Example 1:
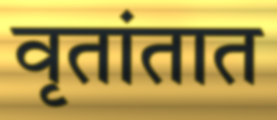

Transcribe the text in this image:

वृतांतात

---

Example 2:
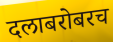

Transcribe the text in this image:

दलाबरोबरच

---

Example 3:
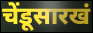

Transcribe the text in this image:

चेंडूसारखं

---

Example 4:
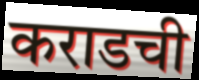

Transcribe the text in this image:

कराडची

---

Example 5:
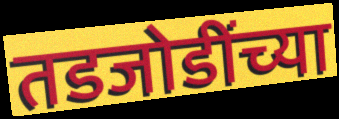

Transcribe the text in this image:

तडजोडींच्या